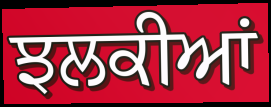
ਝਲਕੀਆਂ